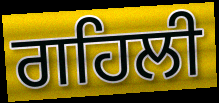
ਗਹਿਲੀ